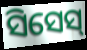
ସିସେସ୍